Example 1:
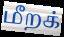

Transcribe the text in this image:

மீறக்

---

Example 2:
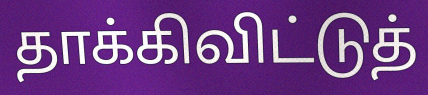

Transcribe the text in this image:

தாக்கிவிட்டுத்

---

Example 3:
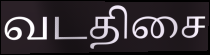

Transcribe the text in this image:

வடதிசை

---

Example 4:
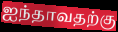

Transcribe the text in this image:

ஐந்தாவதற்கு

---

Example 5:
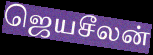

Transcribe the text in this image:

ஜெயசீலன்